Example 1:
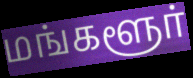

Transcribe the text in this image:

மங்களூர்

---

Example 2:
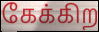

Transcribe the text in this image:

கேக்கிற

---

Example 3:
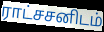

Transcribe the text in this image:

ராட்சசனிடம்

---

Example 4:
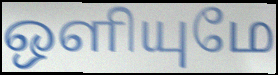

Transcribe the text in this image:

ஒளியுமே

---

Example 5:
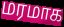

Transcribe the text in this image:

மரமாக